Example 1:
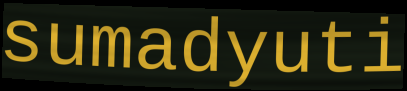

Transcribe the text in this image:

sumadyuti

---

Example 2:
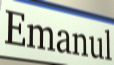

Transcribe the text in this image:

Emanul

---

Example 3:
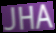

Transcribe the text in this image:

JHA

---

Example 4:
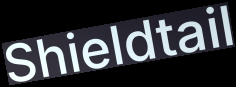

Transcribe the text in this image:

Shieldtail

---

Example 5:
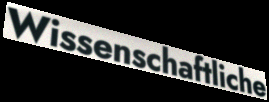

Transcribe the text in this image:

Wissenschaftliche